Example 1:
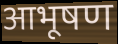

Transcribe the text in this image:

आभूषण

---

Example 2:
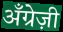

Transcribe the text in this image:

अँग्रेज़ी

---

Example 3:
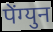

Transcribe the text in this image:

पेंग्युन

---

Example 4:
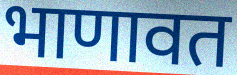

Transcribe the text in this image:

भाणावत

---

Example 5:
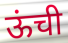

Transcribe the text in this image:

ऊंची